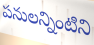
పనులన్నింటిని